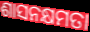
ଶାସନକ୍ଷମତା